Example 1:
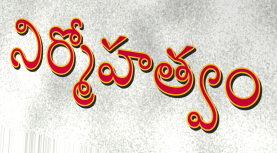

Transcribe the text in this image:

నిర్మోహత్వం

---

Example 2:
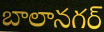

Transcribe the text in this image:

బాలానగర్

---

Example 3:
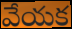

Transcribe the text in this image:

వేయక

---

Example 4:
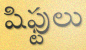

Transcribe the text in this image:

షిఫ్టులు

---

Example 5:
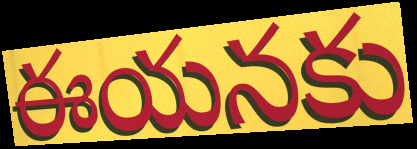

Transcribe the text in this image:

ఈయనకు